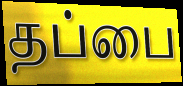
தப்பை